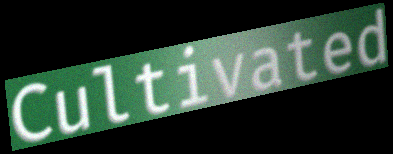
Cultivated